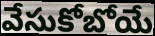
వేసుకోబోయే